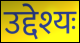
उद्देश्यः